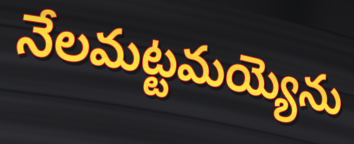
నేలమట్టమయ్యెను